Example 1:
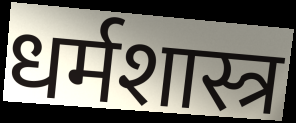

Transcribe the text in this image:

धर्मशास्त्र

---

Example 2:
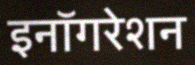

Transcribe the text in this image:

इनॉगरेशन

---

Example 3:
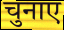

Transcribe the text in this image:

चुनाए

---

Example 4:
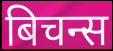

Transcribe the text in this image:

बिचन्स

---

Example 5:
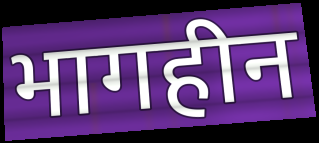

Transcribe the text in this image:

भागहीन